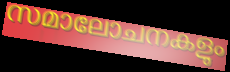
സമാലോചനകളും